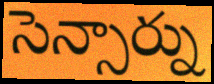
సెన్సార్ను